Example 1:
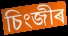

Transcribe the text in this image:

চিংজীৰ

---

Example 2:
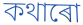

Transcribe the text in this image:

কথাৰো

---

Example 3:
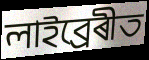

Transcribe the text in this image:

লাইব্ৰেৰীত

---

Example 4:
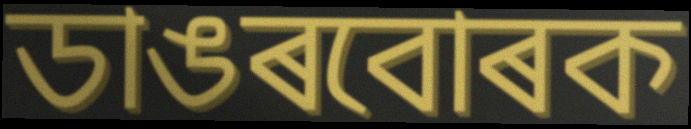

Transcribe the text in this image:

ডাঙৰবোৰক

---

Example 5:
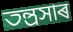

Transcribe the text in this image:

তন্ত্ৰসাৰ